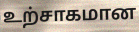
உற்சாகமான